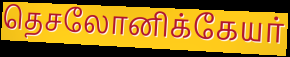
தெசலோனிக்கேயர்